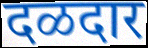
दळदार